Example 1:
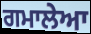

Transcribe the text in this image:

ਗਮਾਲੇਆ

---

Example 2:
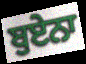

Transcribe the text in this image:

ਬੁਏਨਾ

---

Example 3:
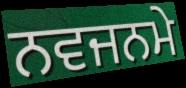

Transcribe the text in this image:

ਨਵਜਨਮੇ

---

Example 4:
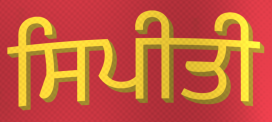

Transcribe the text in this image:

ਸਿਪੀਤੀ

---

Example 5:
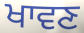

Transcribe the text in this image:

ਖਾਵਣ